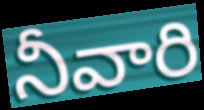
నీవారి